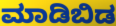
ಮಾಡಿಬಿಡ